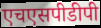
एचएसपीडीपी